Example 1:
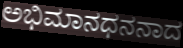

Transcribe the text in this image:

ಅಭಿಮಾನಧನನಾದ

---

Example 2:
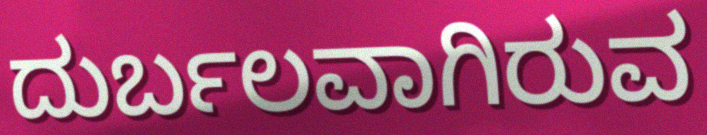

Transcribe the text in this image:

ದುರ್ಬಲವಾಗಿರುವ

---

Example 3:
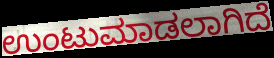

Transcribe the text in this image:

ಉಂಟುಮಾಡಲಾಗಿದೆ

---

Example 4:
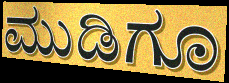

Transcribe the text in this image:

ಮುಡಿಗೂ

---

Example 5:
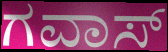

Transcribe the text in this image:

ಗವಾಸ್